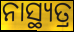
ନାସ୍ଥ୍ୟତ୍ର